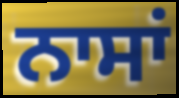
ਨਾਸਾਂ